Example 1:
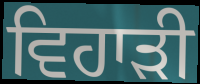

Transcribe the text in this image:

ਵਿਹਾੜੀ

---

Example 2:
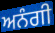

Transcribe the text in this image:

ਅਨੰਗੀ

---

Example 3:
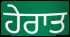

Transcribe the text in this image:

ਹੇਰਾਤ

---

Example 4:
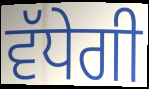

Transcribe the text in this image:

ਵੱਧੇਗੀ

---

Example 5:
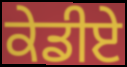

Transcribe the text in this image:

ਕੇਡੀਏ